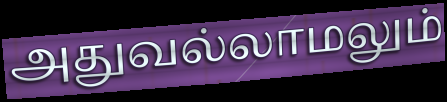
அதுவல்லாமலும்